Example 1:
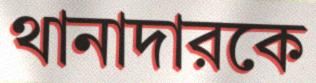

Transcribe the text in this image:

থানাদারকে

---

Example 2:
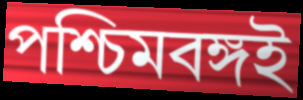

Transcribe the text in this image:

পশ্চিমবঙ্গই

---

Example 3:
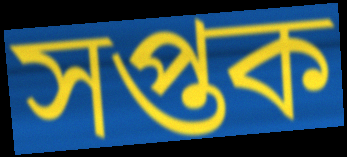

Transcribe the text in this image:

সপ্তক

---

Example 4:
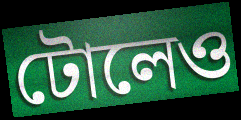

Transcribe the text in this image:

টোলেও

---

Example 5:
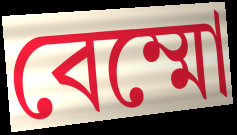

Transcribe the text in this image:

বেম্মো